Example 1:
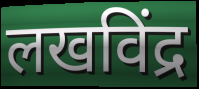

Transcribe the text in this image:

लखविंद्र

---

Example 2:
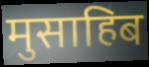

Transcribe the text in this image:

मुसाहिब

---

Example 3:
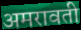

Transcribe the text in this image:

अमरावती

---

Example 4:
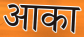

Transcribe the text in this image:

आका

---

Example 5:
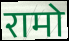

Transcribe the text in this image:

रामो